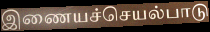
இணையச்செயல்பாடு